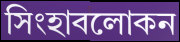
সিংহাবলোকন